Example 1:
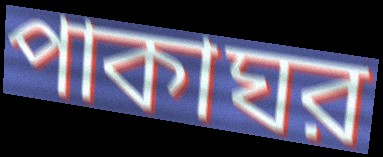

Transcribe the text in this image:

পাকাঘর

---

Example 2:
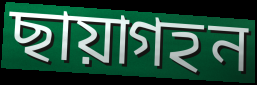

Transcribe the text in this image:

ছায়াগহন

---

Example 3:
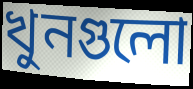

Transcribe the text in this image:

খুনগুলো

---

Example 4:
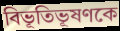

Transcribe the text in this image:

বিভূতিভূষণকে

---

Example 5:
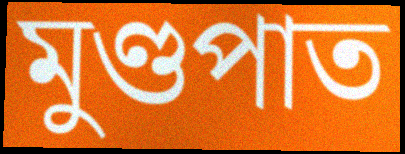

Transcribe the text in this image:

মুণ্ডপাত